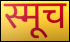
स्मूच